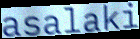
asalaki